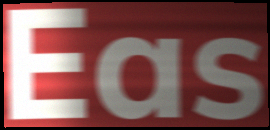
Eas